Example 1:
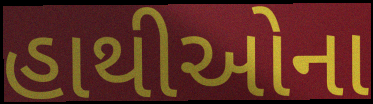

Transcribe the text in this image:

હાથીઓના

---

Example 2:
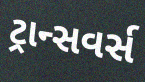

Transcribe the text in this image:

ટ્રાન્સવર્સ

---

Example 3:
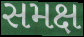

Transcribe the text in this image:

સમક્ષ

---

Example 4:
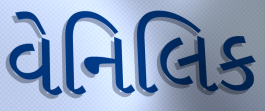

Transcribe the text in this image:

વેનિલિક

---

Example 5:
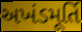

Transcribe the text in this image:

અખંડમૂર્તિ